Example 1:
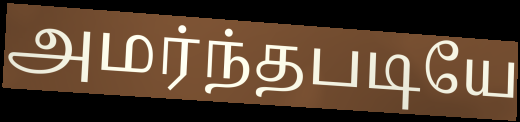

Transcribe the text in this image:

அமர்ந்தபடியே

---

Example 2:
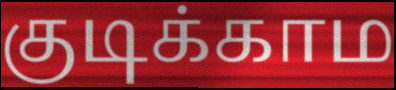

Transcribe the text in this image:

குடிக்காம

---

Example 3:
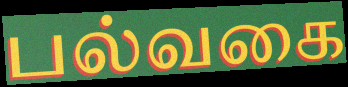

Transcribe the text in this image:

பல்வகை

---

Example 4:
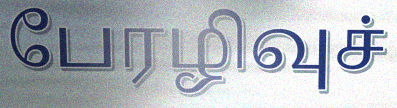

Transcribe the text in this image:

பேரழிவுச்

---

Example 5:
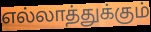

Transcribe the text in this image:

எல்லாத்துக்கும்